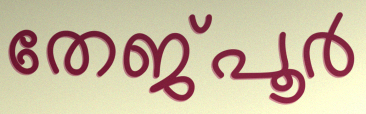
തേജ്പൂർ